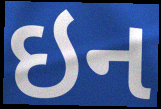
ઇન